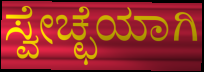
ಸ್ವೇಚ್ಛೆಯಾಗಿ